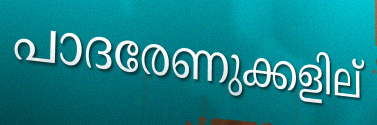
പാദരേണുക്കളില്